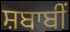
ਸ਼ਬਾਬੀਂ